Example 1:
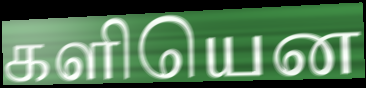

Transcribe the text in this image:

களியென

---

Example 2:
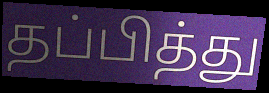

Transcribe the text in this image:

தப்பித்து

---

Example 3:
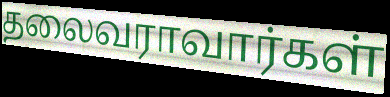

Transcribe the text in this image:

தலைவராவார்கள்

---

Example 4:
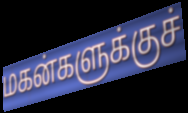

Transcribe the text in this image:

மகன்களுக்குச்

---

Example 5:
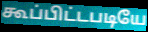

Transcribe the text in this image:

கூப்பிட்டபடியே